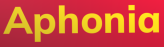
Aphonia